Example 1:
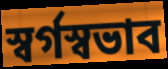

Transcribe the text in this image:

স্বর্গস্বভাব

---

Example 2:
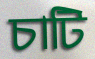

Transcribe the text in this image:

চাটি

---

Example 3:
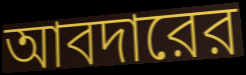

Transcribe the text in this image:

আবদারের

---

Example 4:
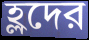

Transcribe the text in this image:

হ্লদের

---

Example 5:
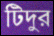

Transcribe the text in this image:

টিদুর